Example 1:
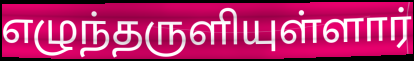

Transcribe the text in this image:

எழுந்தருளியுள்ளார்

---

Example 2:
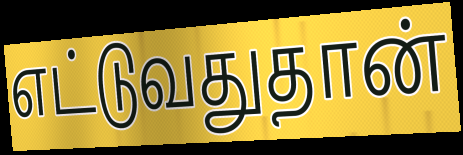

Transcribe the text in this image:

எட்டுவதுதான்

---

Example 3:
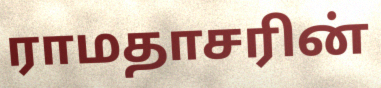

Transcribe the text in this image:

ராமதாசரின்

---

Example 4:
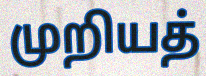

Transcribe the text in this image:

முறியத்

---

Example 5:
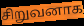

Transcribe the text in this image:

சிறுவனாக